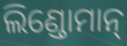
ଲିଣ୍ଡୋମାନ୍